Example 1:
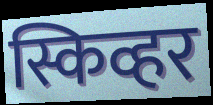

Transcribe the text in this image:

स्किव्हर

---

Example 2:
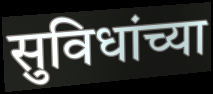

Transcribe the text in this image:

सुविधांच्या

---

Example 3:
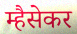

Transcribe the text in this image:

म्हैसेकर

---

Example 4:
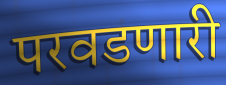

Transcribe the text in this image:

परवडणारी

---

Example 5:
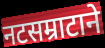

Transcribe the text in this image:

नटसम्राटाने